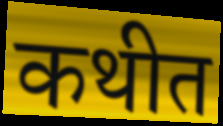
कथीत